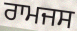
ਰਾਮਜਸ